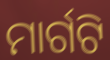
ମାର୍ଗଟି